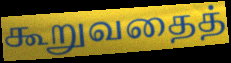
கூறுவதைத்